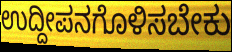
ಉದ್ದೀಪನಗೊಳಿಸಬೇಕು